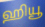
ஹியூ